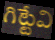
గిట్టేవి